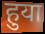
हुया